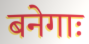
बनेगाः